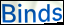
Binds